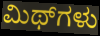
ಮಿಥ್‌ಗಳು